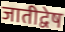
जातीद्वेष